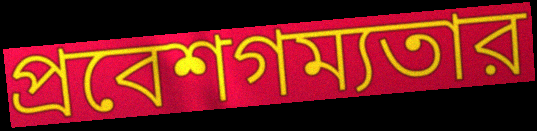
প্রবেশগম্যতার